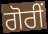
ਗੋਰੀਂ